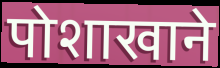
पोशाखाने